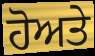
ਹੋਅਤੇ